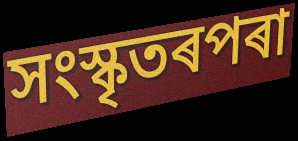
সংস্কৃতৰপৰা